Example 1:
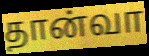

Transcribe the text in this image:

தான்வா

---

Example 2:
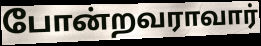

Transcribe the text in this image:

போன்றவராவார்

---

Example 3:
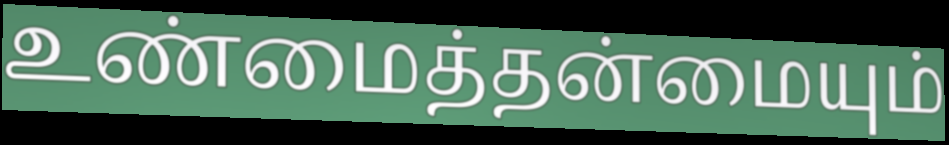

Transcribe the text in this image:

உண்மைத்தன்மையும்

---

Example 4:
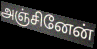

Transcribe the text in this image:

அஞ்சினேன்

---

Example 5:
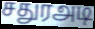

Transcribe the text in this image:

சதுரஅடி